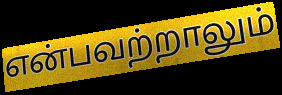
என்பவற்றாலும்